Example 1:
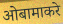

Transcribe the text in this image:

ओबामाकरे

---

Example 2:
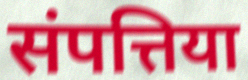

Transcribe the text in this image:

संपत्तिया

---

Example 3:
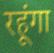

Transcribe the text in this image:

रहूंगा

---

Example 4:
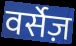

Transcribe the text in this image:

वर्सेज़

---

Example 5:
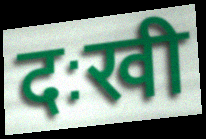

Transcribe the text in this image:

दःखी